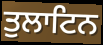
ਤੁਲਾਟਿਨ